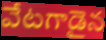
వేటగాడైన